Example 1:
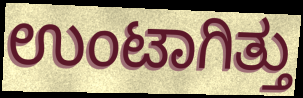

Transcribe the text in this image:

ಉಂಟಾಗಿತ್ತು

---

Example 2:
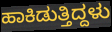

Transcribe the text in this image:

ಹಾಕಿಡುತ್ತಿದ್ದಳು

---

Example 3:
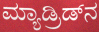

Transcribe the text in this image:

ಮ್ಯಾಡ್ರಿಡ್‌ನ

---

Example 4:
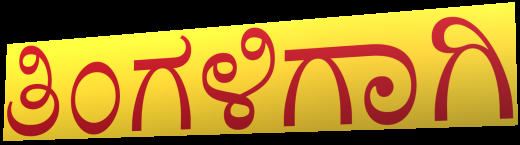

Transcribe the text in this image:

ತಿಂಗಳಿಗಾಗಿ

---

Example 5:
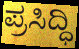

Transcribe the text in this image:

ಪ್ರಸಿದ್ಧಿ